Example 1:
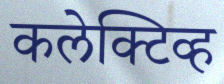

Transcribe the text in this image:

कलेक्टिव्ह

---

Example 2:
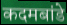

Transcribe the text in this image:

कदमबांडे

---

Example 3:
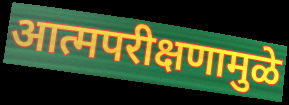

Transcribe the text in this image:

आत्मपरीक्षणामुळे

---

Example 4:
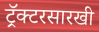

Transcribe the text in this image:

ट्रॅक्टरसारखी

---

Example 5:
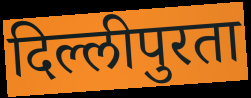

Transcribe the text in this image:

दिल्लीपुरता